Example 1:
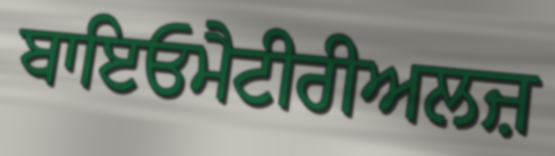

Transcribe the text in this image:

ਬਾਇਓਮੈਟੀਰੀਅਲਜ਼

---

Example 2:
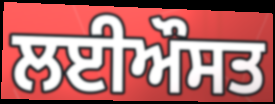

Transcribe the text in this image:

ਲਈਔਸਤ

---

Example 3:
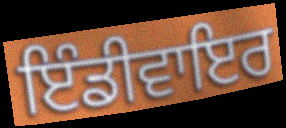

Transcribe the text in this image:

ਇੰਡੀਵਾਇਰ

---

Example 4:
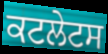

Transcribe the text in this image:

ਕਟਲੇਟਸ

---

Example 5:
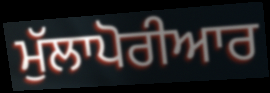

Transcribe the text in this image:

ਮੁੱਲਾਪੋਰੀਆਰ